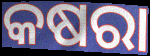
କଷରା